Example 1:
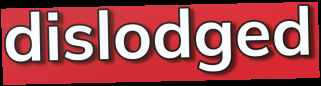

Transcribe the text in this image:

dislodged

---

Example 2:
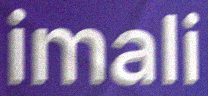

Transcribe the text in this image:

imali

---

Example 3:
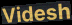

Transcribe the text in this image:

Videsh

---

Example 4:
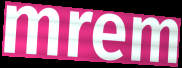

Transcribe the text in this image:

mrem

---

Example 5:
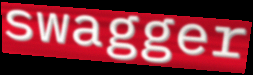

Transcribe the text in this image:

swagger